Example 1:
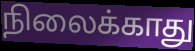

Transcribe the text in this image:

நிலைக்காது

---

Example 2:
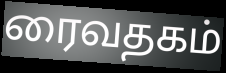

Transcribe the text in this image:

ரைவதகம்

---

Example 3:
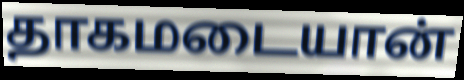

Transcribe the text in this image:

தாகமடையான்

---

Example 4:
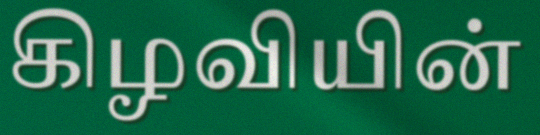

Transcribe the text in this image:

கிழவியின்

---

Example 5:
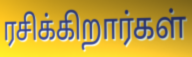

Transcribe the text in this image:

ரசிக்கிறார்கள்